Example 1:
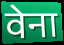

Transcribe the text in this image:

वेना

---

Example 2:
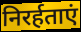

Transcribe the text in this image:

निरर्हताएं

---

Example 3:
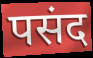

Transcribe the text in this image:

पसंद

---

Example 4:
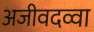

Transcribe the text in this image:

अजीवदव्वा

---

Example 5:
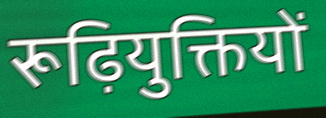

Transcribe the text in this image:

रूढ़ियुक्तियों